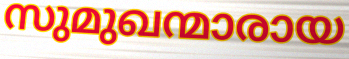
സുമുഖന്മാരായ